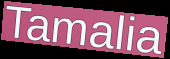
Tamalia